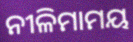
ନୀଳିମାମୟ